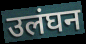
उलंघन